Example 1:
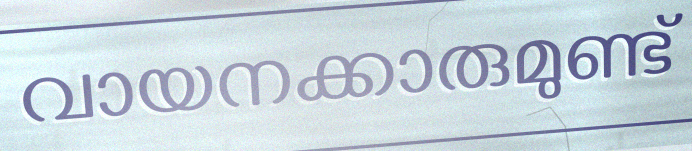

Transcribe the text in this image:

വായനക്കാരുമുണ്ട്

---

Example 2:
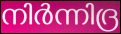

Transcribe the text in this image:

നിർന്നിദ്ര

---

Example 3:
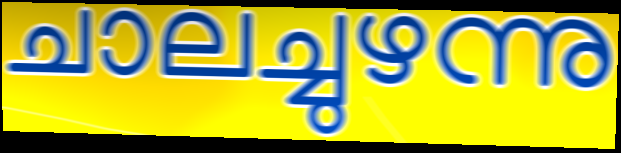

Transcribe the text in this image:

ചാലച്ചുഴന്നു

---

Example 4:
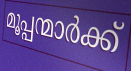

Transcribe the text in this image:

മൂപ്പന്മാർക്ക്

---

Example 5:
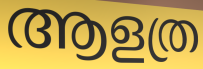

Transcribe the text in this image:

ആളത്ര